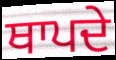
ਥਾਪਦੇ